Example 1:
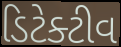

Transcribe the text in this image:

ડિટેક્ટીવ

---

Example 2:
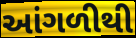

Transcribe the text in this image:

આંગળીથી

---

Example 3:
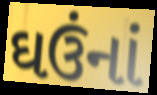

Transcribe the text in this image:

ઘઉંનાં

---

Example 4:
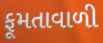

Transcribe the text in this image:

ફૂમતાવાળી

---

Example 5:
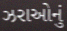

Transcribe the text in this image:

ઝરાઓનું